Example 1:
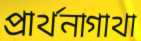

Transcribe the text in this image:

প্রার্থনাগাথা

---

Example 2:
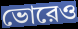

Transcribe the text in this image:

ভোরেও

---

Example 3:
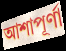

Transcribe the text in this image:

আশাপূর্ণা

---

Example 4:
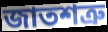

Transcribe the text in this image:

জাতশত্রু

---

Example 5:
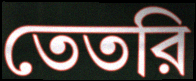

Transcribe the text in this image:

তেতরি